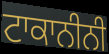
ਟਾਕਾਨੀਨੀ